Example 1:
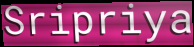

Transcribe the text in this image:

Sripriya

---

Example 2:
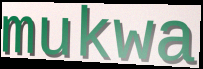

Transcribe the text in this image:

mukwa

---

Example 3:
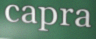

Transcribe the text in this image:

capra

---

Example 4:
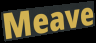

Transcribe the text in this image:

Meave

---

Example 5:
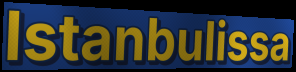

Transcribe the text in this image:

Istanbulissa